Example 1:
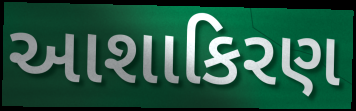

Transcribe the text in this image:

આશાકિરણ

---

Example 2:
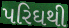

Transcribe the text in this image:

પરિઘથી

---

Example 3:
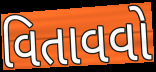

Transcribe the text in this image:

વિતાવવો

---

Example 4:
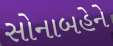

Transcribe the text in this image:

સોનાબહેને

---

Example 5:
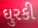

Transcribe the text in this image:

ઘુરકી